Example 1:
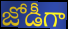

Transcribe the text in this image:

జోడీగా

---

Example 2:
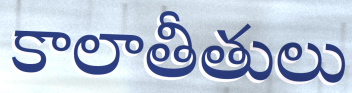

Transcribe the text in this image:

కాలాతీతులు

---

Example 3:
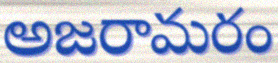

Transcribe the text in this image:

అజరామరం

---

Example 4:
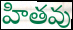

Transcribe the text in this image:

హితవు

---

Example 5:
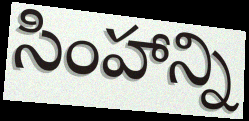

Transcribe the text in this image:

సింహాన్ని